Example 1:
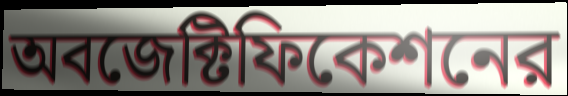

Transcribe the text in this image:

অবজেক্টিফিকেশনের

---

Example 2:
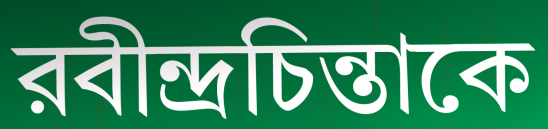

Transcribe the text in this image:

রবীন্দ্রচিন্তাকে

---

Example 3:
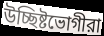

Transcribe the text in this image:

উচ্ছিষ্টভোগীরা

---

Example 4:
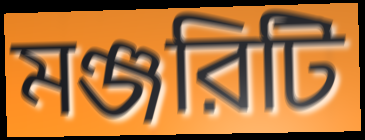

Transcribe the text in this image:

মঞ্জরিটি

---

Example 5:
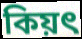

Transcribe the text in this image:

কিয়ৎ